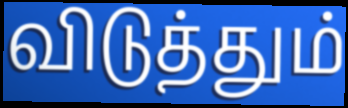
விடுத்தும்